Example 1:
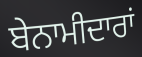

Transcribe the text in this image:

ਬੇਨਾਮੀਦਾਰਾਂ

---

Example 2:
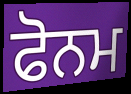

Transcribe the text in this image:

ਫੋਨਮ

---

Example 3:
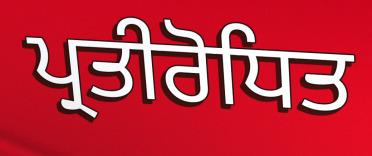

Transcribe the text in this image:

ਪ੍ਰਤੀਰੋਧਿਤ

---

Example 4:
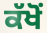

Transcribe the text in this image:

ਕੱਖੋਂ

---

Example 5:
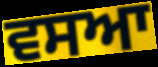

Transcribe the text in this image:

ਵਸਆ